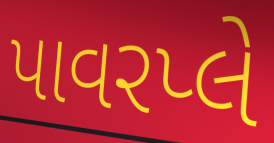
પાવરપ્લે